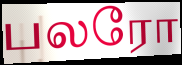
பலரோ